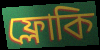
ফ্লোকি